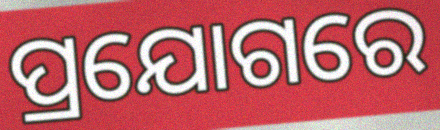
ପ୍ରଯୋଗରେ